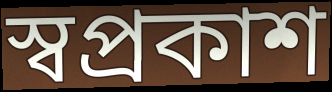
স্বপ্ৰকাশ